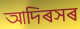
আদিৰসৰ